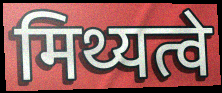
मिथ्यत्वे